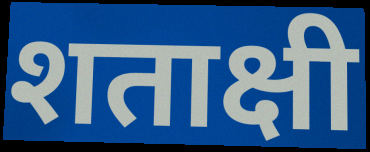
शताक्षी